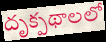
దృక్పథాలలో